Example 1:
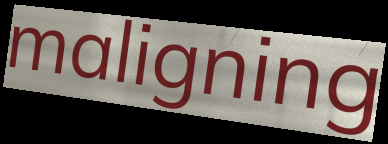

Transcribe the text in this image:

maligning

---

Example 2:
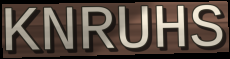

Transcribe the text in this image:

KNRUHS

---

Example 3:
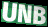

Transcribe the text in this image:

UNB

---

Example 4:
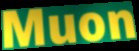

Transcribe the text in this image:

Muon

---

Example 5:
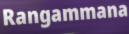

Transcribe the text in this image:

Rangammana